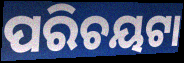
ପରିଚୟଟା